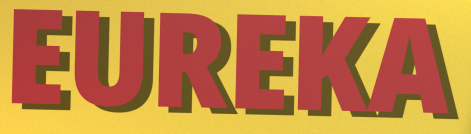
EUREKA